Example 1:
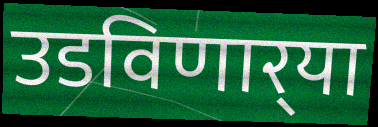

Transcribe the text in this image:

उडविणार्‍या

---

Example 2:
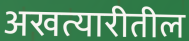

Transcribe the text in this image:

अखत्यारीतील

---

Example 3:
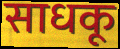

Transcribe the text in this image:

साधकू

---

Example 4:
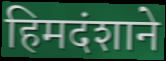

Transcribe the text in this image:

हिमदंशाने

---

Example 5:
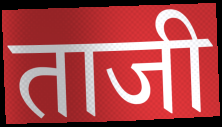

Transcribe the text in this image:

ताजी